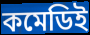
কমেডিই